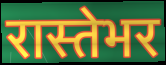
रास्तेभर